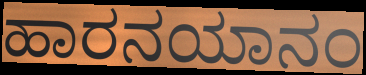
ಹಾರನಯಾನಂ